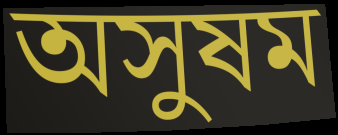
অসুষম